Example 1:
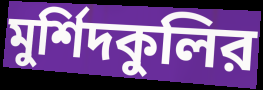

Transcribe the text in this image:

মুর্শিদকুলির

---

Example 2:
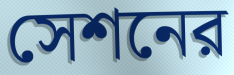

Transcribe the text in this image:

সেশনের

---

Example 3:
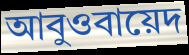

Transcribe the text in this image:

আবুওবায়েদ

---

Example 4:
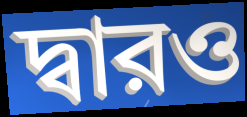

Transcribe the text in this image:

দ্বারও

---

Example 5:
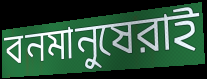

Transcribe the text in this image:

বনমানুষেরাই